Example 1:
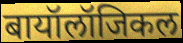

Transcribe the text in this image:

बायॉलॉजिकल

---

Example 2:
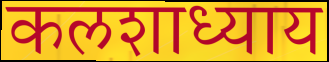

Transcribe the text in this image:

कलशाध्याय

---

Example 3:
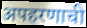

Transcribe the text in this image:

अपहरणाची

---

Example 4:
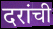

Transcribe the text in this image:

दरांची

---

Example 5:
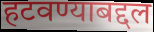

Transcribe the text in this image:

हटवण्याबद्दल